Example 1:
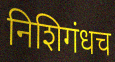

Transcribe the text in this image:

निशिगंधच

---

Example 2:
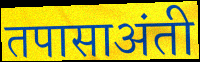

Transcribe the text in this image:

तपासाअंती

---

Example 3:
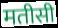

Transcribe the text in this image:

मतीसी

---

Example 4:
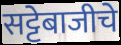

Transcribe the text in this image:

सट्टेबाजीचे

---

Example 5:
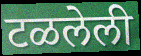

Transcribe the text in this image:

टळलेली